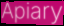
Apiary